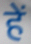
हें